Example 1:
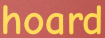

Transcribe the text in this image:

hoard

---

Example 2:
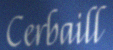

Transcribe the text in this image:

Cerbaill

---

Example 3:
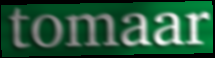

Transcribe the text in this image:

tomaar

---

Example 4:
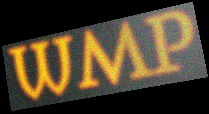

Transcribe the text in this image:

WMP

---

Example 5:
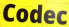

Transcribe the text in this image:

Codec